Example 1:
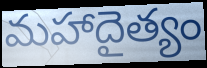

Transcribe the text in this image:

మహాదైత్యం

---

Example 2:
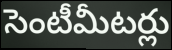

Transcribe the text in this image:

సెంటీమీటర్లు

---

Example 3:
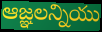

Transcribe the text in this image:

ఆజ్ఞలన్నియు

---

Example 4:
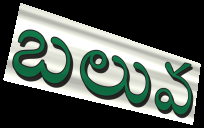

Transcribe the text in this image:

బలువ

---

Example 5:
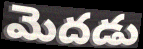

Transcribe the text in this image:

మెదడు